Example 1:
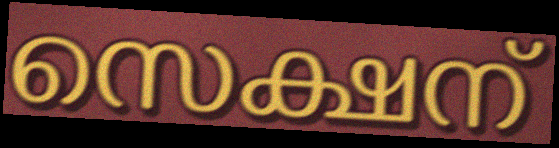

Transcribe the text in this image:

സെക്ഷന്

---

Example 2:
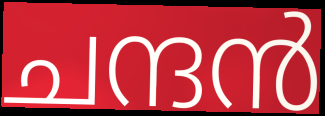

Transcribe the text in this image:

ചന്ദൻ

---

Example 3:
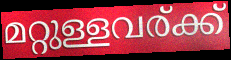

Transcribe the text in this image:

മറ്റുള്ളവര്ക്ക്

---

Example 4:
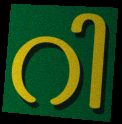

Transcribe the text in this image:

റി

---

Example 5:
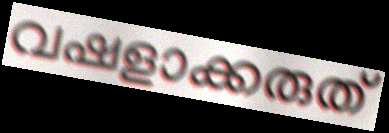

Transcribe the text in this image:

വഷളാക്കരുത്